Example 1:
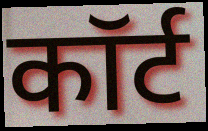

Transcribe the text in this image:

कॉर्ट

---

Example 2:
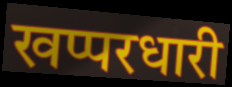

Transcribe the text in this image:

खप्परधारी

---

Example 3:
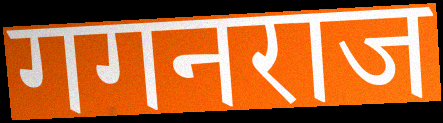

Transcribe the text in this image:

गगनराज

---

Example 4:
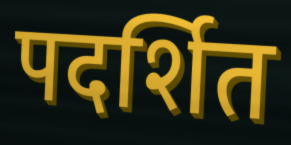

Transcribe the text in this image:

पदर्शित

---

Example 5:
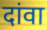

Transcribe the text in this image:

दांवा